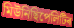
মিউনিছিপেলিটিৰ